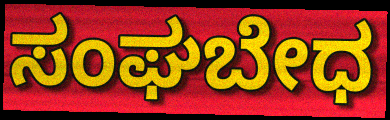
ಸಂಘಬೇಧ